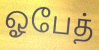
ஓபேத்